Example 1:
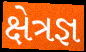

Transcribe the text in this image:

ક્ષેત્રજ્ઞ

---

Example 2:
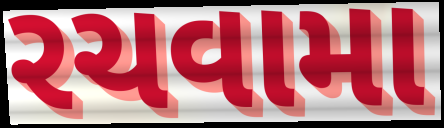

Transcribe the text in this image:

રચવામા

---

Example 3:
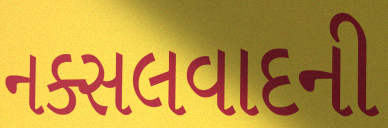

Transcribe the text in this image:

નક્સલવાદની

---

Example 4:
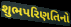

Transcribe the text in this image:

શુભપરિણતિનો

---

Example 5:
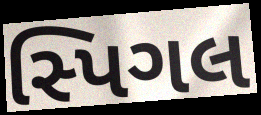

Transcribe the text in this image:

સ્પિગલ